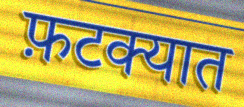
फ़टक्यात